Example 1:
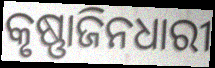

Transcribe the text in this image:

କୃଷ୍ଣାଜିନଧାରୀ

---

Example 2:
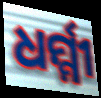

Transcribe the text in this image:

ଧର୍ମ୍ମୀ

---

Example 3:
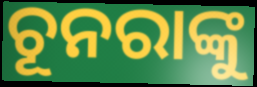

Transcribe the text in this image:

ଚୂନରାଙ୍କୁ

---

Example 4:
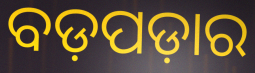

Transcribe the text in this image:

ବଡ଼ପଡ଼ାର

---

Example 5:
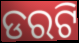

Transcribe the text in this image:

ଡରଟି